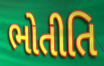
ભોતીતિ